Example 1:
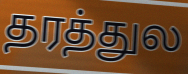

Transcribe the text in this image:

தரத்துல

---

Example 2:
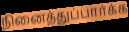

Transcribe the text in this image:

நினைத்துப்பார்க்க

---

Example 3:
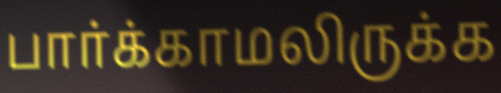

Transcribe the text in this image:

பார்க்காமலிருக்க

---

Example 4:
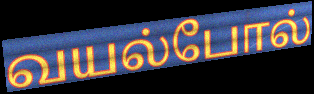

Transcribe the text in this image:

வயல்போல்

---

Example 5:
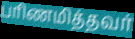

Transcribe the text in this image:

பரிணமித்தவர்